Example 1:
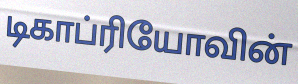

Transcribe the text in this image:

டிகாப்ரியோவின்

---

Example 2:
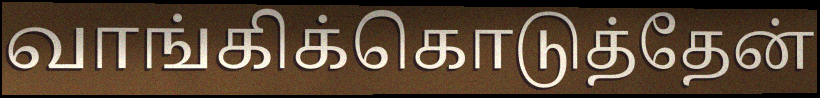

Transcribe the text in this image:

வாங்கிக்கொடுத்தேன்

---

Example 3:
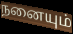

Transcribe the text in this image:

நனையும்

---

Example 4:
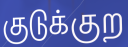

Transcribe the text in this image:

குடுக்குற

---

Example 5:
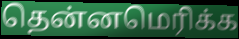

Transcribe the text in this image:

தென்னமெரிக்க